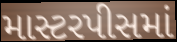
માસ્ટરપીસમાં